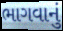
ભાગવાનું